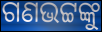
ଗଣଭଟ୍ଟଙ୍କୁ